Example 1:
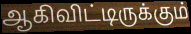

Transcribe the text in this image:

ஆகிவிட்டிருக்கும்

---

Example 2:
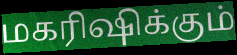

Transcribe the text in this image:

மகரிஷிக்கும்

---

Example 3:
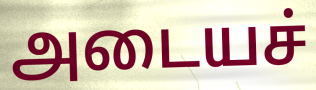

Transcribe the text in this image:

அடையச்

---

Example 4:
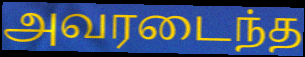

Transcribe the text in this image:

அவரடைந்த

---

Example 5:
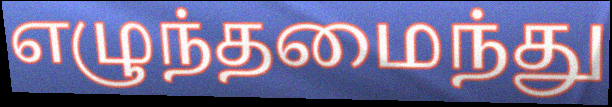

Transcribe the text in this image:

எழுந்தமைந்து